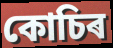
কোচিৰ